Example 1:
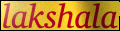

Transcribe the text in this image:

lakshala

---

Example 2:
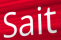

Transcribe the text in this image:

Sait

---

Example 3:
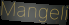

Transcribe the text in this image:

Mangeli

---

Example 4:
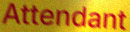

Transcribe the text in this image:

Attendant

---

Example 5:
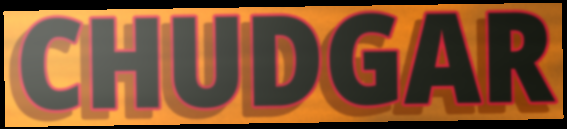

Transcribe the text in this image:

CHUDGAR